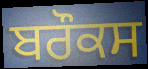
ਬਰੌਕਸ